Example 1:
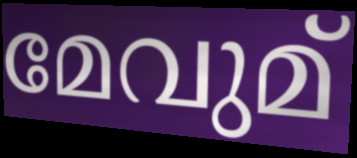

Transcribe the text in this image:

മേവുമ്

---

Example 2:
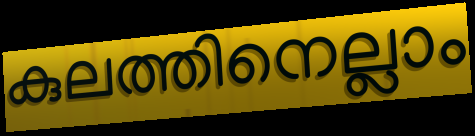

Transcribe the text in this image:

കുലത്തിനെല്ലാം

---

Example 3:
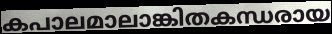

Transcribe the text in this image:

കപാലമാലാങ്കിതകന്ധരായ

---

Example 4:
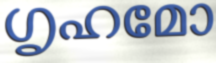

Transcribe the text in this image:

ഗൃഹമോ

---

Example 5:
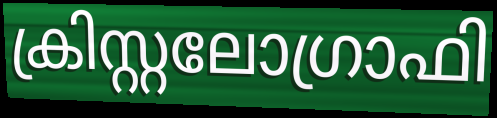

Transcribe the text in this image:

ക്രിസ്റ്റലോഗ്രാഫി